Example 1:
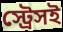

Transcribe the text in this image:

স্ট্রেসই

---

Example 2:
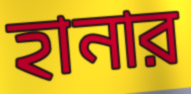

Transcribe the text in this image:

হানার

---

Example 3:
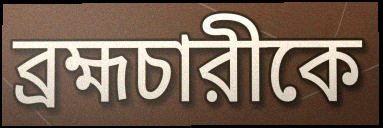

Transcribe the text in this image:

ব্রহ্মচারীকে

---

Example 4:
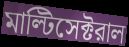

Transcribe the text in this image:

মাল্টিসেক্টরাল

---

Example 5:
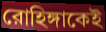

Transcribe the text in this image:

রোহিঙ্গাকেই